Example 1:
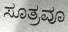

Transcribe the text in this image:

ಸೂತ್ರವೂ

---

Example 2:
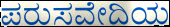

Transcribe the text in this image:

ಪರುಸವೇದಿಯ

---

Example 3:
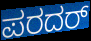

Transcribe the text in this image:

ಪರದರ್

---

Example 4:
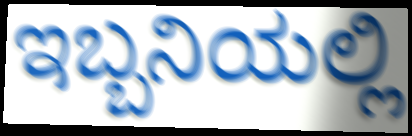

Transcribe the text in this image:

ಇಬ್ಬನಿಯಲ್ಲಿ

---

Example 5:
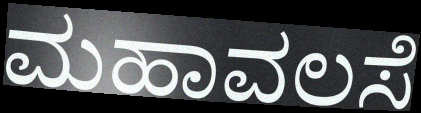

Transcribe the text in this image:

ಮಹಾವಲಸೆ